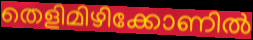
തെളിമിഴിക്കോണിൽ